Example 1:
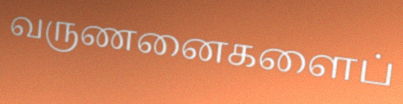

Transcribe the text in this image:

வருணனைகளைப்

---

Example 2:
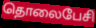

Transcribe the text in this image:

தொலைபேசி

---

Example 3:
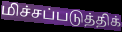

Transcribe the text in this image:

மிச்சப்படுத்திக்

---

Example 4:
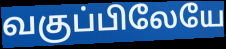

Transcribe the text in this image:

வகுப்பிலேயே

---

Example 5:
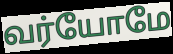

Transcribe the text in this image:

வர்யோமே